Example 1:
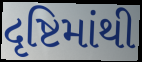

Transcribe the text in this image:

દૃષ્ટિમાંથી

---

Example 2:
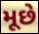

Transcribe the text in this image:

મૂછે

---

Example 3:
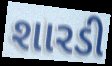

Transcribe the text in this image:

શારડી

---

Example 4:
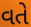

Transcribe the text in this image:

વતે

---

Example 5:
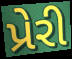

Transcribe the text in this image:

પ્રેરી